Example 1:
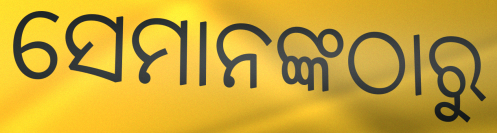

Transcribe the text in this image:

ସେମାନଙ୍କଠାରୁ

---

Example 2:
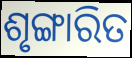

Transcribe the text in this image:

ଶୃଙ୍ଗାରିତ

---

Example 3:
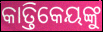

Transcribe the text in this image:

କାତ୍ତିକେୟଙ୍କୁ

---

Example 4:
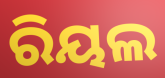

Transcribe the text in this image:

ରିୟଲ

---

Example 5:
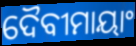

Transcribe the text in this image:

ଦୈବୀମାୟାଂ